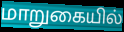
மாறுகையில்